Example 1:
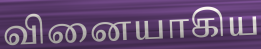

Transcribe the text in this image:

வினையாகிய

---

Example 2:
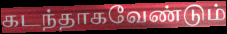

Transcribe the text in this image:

கடந்தாகவேண்டும்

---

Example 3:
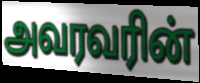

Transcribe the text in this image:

அவரவரின்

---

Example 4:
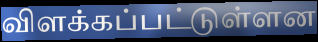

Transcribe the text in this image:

விளக்கப்பட்டுள்ளன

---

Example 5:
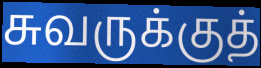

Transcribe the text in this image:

சுவருக்குத்